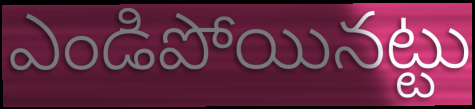
ఎండిపోయినట్టు